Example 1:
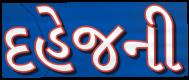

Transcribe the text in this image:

દહેજની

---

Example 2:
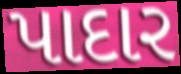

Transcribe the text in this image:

પાદાર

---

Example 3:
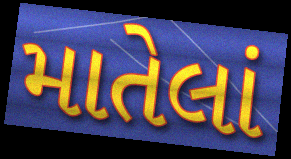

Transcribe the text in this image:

માતેલાં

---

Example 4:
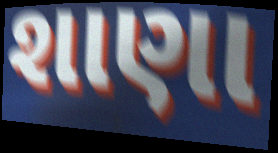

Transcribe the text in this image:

શાણા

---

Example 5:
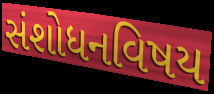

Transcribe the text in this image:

સંશોધનવિષય